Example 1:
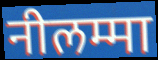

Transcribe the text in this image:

नीलम्मा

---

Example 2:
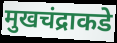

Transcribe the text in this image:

मुखचंद्राकडे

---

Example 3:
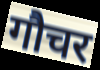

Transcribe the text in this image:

गौचर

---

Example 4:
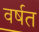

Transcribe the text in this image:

वर्षत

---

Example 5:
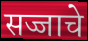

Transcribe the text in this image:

सज्जाचे